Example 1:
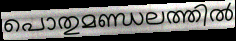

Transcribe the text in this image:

പൊതുമണ്ഡലത്തിൽ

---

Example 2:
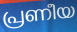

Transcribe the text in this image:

പ്രണീയ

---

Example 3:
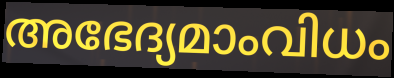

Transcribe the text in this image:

അഭേദ്യമാംവിധം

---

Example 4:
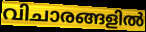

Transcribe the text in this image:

വിചാരങ്ങളിൽ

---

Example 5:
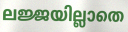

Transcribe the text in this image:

ലജ്ജയില്ലാതെ